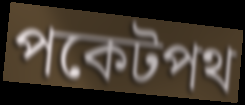
পকেটপথ